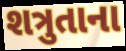
શત્રુતાના